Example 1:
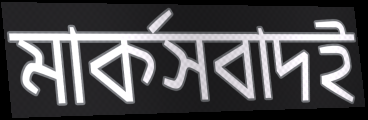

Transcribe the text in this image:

মার্কসবাদই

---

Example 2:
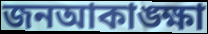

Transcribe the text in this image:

জনআকাঙ্ক্ষা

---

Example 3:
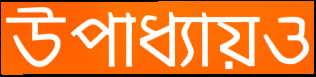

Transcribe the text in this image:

উপাধ্যায়ও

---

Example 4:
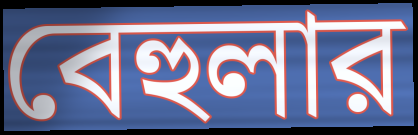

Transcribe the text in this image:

বেহুলার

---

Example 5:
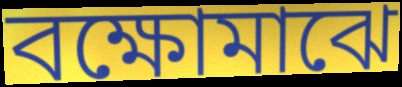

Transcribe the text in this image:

বক্ষোমাঝে